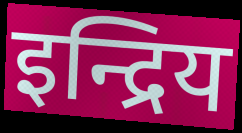
इन्द्रिय